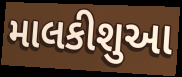
માલકીશુઆ